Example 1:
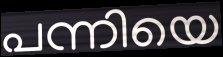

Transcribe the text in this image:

പന്നിയെ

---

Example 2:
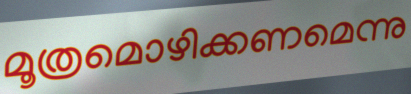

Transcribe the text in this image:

മൂത്രമൊഴിക്കണമെന്നു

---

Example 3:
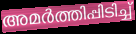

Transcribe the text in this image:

അമർത്തിപ്പിടിച്ച്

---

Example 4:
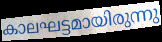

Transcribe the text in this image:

കാലഘട്ടമായിരുന്നു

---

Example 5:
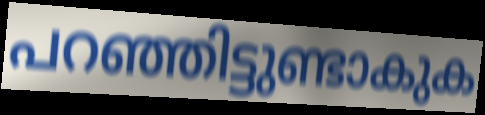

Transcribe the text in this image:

പറഞ്ഞിട്ടുണ്ടാകുക